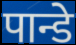
पान्डे